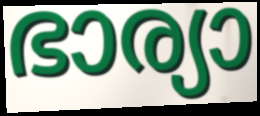
ഭാര്യാ